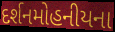
દર્શનમોહનીયના